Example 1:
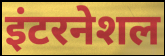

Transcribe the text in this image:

इंटरनेशल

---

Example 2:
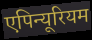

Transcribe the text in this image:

एपिन्यूरियम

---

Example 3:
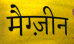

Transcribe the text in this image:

मैग्ज़ीन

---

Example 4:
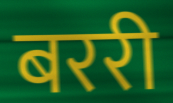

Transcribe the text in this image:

बररी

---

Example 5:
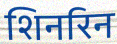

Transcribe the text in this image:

शिनरिन